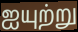
ஐயுற்று